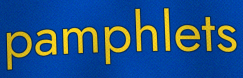
pamphlets